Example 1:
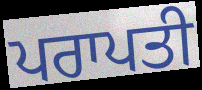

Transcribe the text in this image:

ਪਰਾਪਤੀ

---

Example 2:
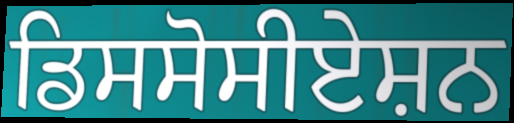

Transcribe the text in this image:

ਡਿਸਸੋਸੀਏਸ਼ਨ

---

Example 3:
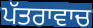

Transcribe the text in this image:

ਪੱਤਰਾਵਾਚ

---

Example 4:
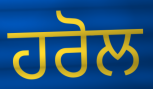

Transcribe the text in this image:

ਹਰੋਲ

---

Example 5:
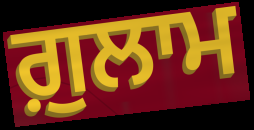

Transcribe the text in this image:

ਗ਼ੁਲਾਮ